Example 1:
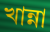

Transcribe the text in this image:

খান্না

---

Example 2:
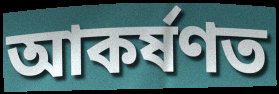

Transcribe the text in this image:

আকৰ্ষণত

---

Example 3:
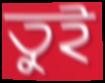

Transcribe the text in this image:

তুই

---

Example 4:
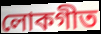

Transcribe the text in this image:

লোকগীত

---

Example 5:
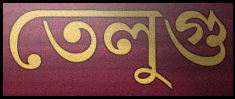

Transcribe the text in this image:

তেলুগু